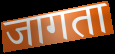
जागता